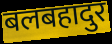
बलबहादुर